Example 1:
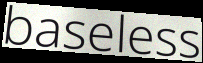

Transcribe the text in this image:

baseless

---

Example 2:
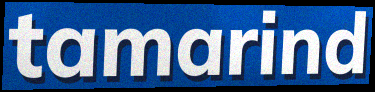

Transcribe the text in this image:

tamarind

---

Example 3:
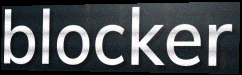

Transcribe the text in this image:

blocker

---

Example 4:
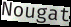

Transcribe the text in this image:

Nougat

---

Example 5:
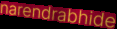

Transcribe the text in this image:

narendrabhide